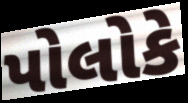
પોલોકે